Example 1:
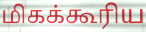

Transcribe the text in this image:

மிகக்கூரிய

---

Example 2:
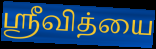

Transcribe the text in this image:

ஸ்ரீவித்யை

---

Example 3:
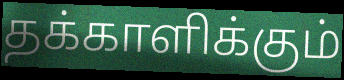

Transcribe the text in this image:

தக்காளிக்கும்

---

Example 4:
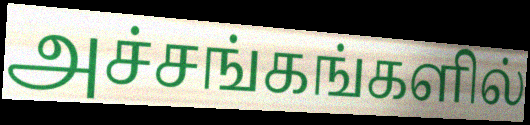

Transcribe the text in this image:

அச்சங்கங்களில்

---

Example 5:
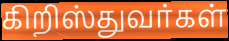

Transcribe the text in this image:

கிறிஸ்துவர்கள்